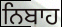
ਨਿਬਾਹ